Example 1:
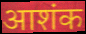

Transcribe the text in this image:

आशंक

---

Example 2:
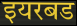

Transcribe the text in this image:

इयरबड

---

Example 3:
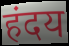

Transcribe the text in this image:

हंदय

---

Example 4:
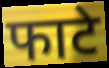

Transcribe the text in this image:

फाटे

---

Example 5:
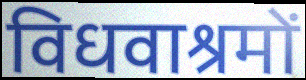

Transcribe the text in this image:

विधवाश्रमों